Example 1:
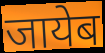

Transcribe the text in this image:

जायेब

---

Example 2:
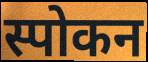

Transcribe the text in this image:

स्पोकन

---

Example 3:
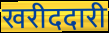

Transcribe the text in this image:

खरीददारी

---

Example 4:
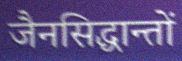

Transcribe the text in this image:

जैनसिद्धान्तों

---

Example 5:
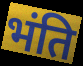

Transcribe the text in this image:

भंति